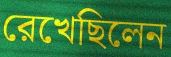
রেখেছিলেন